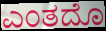
ಎಂತದೊ